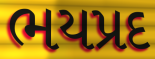
ભયપ્રદ